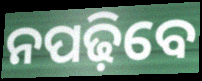
ନପଢ଼ିବେ